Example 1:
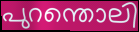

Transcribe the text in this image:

പുറന്തൊലി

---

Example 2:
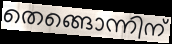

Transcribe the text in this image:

തെങ്ങൊന്നിന്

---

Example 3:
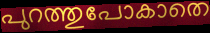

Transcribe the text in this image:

പുറത്തുപോകാതെ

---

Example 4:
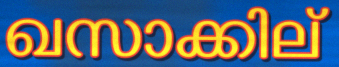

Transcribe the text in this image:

ഖസാക്കില്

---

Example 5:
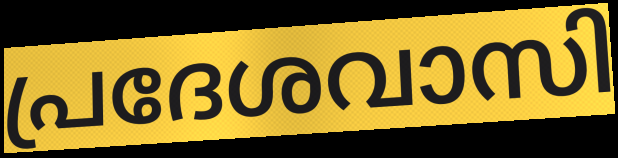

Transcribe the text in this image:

പ്രദേശവാസി